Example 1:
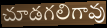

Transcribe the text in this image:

చూడగలిగావు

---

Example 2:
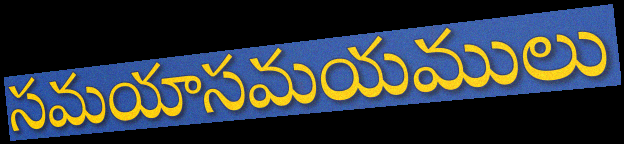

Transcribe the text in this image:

సమయాసమయములు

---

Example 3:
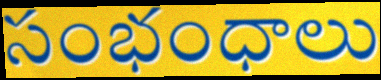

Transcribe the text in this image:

సంభంధాలు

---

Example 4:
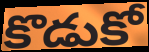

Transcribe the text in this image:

కొడుకో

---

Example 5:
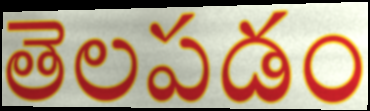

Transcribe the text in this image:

తెలపడం